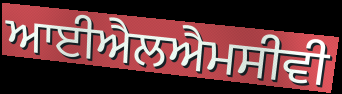
ਆਈਐਲਐਮਸੀਵੀ